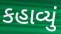
કહાવ્યું